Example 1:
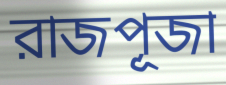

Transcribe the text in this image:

রাজপূজা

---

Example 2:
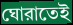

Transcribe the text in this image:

ঘোরাতেই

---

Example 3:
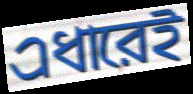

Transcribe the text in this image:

এধারেই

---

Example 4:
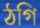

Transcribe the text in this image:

ঠগি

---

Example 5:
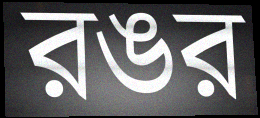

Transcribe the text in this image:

রঙর